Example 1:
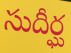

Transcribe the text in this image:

సుదీర్ఘ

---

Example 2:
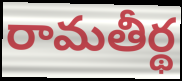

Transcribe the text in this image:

రామతీర్థ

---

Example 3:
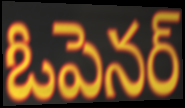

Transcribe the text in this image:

ఓపెనర్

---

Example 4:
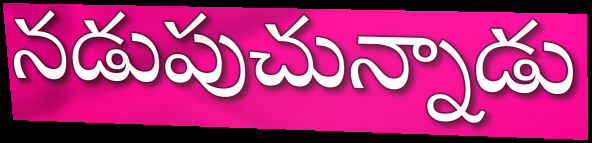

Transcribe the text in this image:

నడుపుచున్నాడు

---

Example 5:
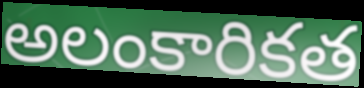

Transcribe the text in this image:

అలంకారికత